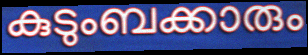
കുടുംബക്കാരും